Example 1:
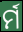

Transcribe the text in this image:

ର୍ମ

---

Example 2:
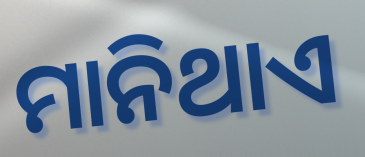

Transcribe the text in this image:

ମାନିଥାଏ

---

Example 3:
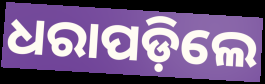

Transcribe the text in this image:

ଧରାପଡ଼ିଲେ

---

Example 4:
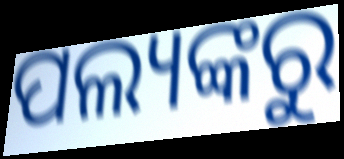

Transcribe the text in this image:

ପଲ୍ୟଙ୍କରୁ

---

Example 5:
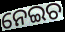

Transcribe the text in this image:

ନେଇଚ